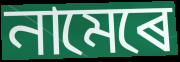
নামেৰে